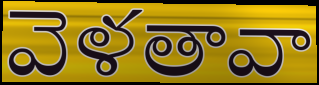
వెళతావా